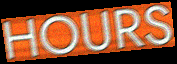
HOURS